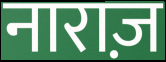
नाराज़